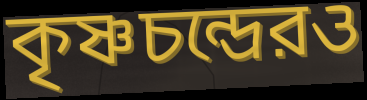
কৃষ্ণচন্দ্রেরও